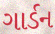
ગાર્ડન